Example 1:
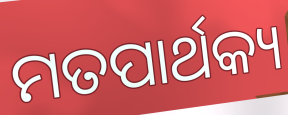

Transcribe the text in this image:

ମତପାର୍ଥକ୍ୟ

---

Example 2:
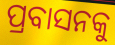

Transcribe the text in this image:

ପ୍ରବାସନକୁ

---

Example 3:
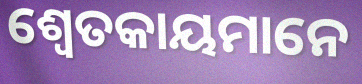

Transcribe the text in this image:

ଶ୍ୱେତକାୟମାନେ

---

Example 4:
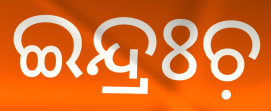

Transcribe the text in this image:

ଇନ୍ଦ୍ରଃଚ଼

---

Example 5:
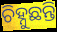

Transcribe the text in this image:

ଚିହ୍ନୁଛନ୍ତି